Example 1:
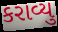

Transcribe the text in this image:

કરાવ્યુ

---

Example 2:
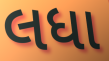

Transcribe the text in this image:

લધા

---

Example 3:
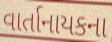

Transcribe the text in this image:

વાર્તાનાયકના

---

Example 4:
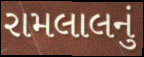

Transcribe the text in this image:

રામલાલનું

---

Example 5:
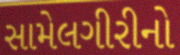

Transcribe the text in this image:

સામેલગીરીનો